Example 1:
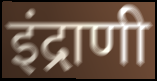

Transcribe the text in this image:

इंद्राणी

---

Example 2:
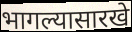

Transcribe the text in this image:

भागल्यासारखे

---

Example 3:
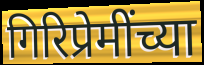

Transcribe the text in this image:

गिरिप्रेमींच्या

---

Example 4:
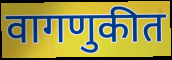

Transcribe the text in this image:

वागणुकीत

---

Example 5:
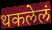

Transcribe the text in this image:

थकलेलं